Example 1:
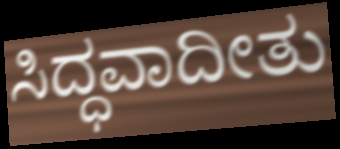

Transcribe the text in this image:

ಸಿದ್ಧವಾದೀತು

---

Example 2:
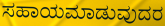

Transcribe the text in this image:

ಸಹಾಯಮಾಡುವುದರ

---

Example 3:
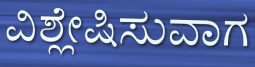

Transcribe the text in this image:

ವಿಶ್ಲೇಷಿಸುವಾಗ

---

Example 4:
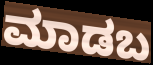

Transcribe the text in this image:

ಮಾಡಬ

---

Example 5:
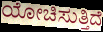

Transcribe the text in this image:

ಯೋಚಿಸುತ್ತಿದೆ